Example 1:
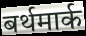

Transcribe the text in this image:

बर्थमार्क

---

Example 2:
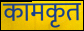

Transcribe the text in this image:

कामकृत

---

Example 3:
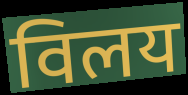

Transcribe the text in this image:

विलय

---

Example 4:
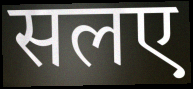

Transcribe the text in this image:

सलए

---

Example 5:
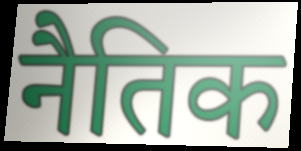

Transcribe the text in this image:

नैतिक